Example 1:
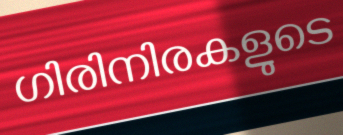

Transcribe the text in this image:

ഗിരിനിരകളുടെ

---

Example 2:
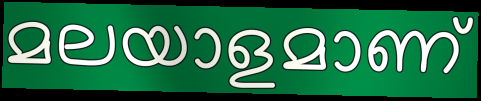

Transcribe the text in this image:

മലയാളമാണ്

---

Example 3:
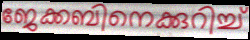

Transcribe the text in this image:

ജേക്കബിനെക്കുറിച്ച്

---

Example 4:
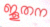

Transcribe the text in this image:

ജൂതന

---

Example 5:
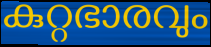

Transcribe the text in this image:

കുറ്റഭാരവും